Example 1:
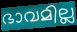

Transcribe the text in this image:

ഭാവമില്ല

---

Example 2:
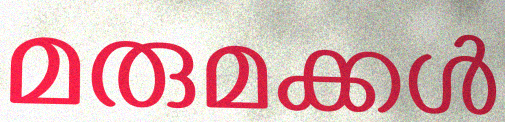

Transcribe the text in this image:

മരുമക്കൾ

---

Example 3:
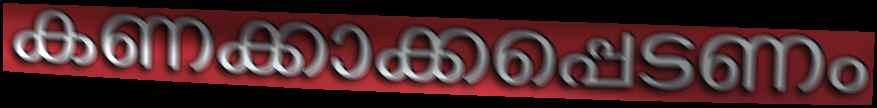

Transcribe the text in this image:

കണക്കാക്കപ്പെടണം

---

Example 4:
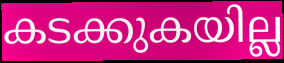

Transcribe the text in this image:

കടക്കുകയില്ല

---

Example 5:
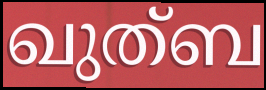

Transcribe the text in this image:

ഖുത്ബ